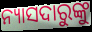
ନ୍ୟାସଦାରୁଙ୍କୁ